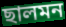
ছালমন